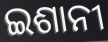
ଇଶାନୀ